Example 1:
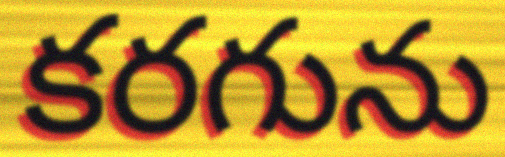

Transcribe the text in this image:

కరగును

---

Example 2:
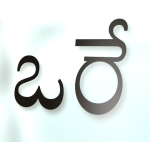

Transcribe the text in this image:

ఒరే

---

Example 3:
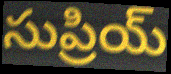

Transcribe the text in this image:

సుప్రియ్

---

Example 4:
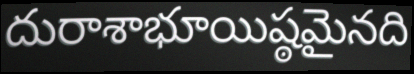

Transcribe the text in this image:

దురాశాభూయిష్ఠమైనది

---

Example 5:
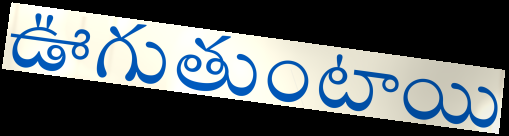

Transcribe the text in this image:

ఊగుతుంటాయి